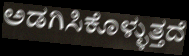
ಅಡಗಿಸಿಕೊಳ್ಳುತ್ತದೆ